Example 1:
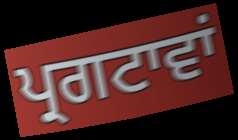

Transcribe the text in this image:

ਪ੍ਰਗਟਾਵਾਂ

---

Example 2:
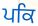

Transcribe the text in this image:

ਪਕਿ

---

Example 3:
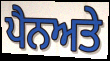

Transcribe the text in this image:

ਪੈਨਅਤੇ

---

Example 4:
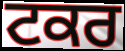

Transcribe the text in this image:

ਟਕਰ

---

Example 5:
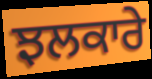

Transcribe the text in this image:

ਝਲਕਾਰੇ